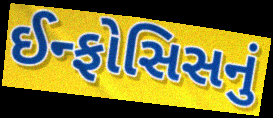
ઈન્ફોસિસનું